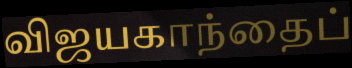
விஜயகாந்தைப்